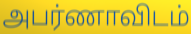
அபர்ணாவிடம்